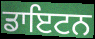
ਡਾਇਟਨ